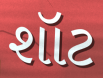
શૉટ